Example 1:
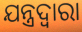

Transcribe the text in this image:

ଯନ୍ତ୍ରଦ୍ବାରା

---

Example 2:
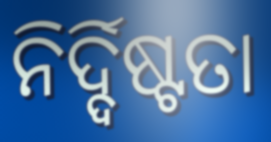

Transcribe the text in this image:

ନିର୍ଦ୍ଦିଷ୍ଟତା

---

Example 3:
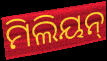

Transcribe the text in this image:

ମିଲିୟନ୍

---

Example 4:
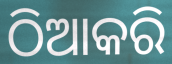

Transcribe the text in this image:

ଠିଆକରି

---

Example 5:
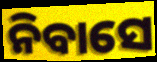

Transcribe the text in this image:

ନିବାସେ